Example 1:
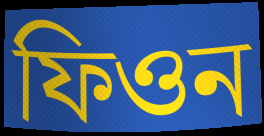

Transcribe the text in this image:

ফিওন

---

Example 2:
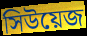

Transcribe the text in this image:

সিউয়েজ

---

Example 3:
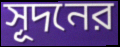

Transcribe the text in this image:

সূদনের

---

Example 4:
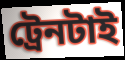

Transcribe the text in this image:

ট্রেনটাই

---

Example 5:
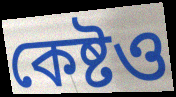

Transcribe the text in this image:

কেষ্টও